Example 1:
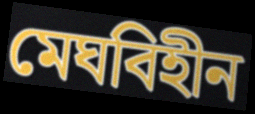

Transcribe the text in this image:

মেঘবিহীন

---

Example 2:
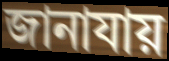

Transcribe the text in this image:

জানাযায়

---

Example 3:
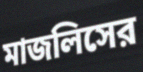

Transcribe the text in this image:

মাজলিসের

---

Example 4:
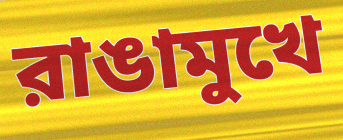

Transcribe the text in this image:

রাঙামুখে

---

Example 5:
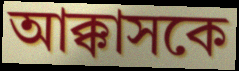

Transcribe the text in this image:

আক্কাসকে